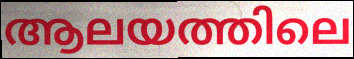
ആലയത്തിലെ